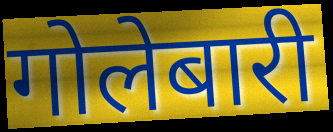
गोलेबारी